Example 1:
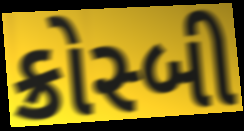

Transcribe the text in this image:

ક્રોસ્બી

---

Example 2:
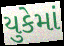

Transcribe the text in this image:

યુકેમાં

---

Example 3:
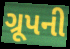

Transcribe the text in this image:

ગ્રૂપની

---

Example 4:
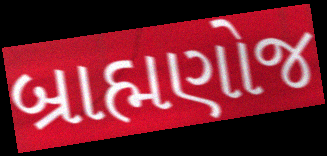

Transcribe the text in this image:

બ્રાહ્મણોજ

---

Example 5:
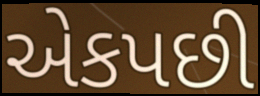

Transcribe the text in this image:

એકપછી